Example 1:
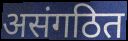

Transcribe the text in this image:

असंगठित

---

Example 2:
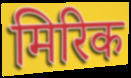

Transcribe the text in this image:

मिरिक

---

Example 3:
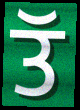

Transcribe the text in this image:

उॅ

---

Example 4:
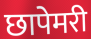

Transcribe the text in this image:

छापेमरी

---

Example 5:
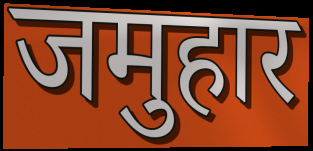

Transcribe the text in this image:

जमुहार